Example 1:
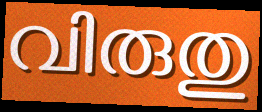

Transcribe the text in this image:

വിരുതു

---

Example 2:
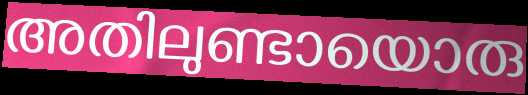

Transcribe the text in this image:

അതിലുണ്ടായൊരു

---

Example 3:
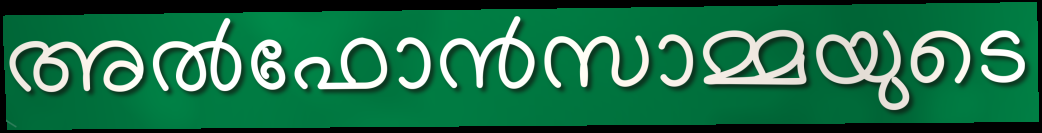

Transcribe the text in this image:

അൽഫോൻസാമ്മയുടെ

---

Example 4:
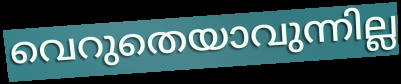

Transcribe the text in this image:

വെറുതെയാവുന്നില്ല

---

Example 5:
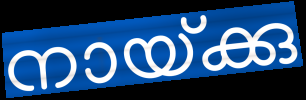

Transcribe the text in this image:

നായ്‌ക്കു